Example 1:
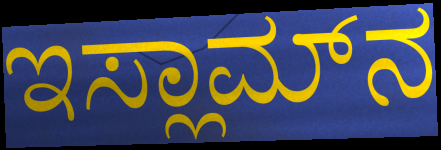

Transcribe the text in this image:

ಇಸ್ಲಾಮ್‌ನ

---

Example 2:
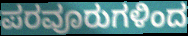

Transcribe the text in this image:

ಪರವೂರುಗಳಿಂದ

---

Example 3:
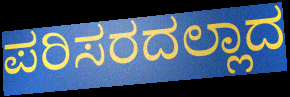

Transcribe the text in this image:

ಪರಿಸರದಲ್ಲಾದ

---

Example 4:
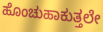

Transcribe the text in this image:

ಹೊಂಚುಹಾಕುತ್ತಲೇ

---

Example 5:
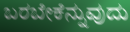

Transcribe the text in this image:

ಬರಬೇಕೆನ್ನುವುದು